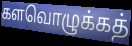
களவொழுக்கத்